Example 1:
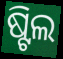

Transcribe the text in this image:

ଷ୍ଟିଲ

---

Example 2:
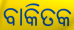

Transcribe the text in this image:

ବାକିତକ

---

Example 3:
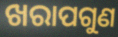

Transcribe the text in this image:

ଖରାପଗୁଣ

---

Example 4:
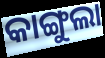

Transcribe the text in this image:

କାଙ୍ଗୁଲା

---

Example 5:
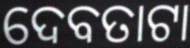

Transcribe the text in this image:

ଦେବତାଟା